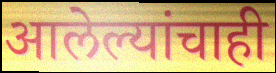
आलेल्यांचाही